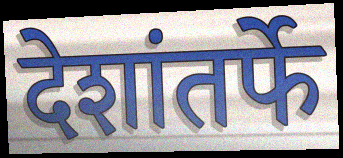
देशांतर्फे